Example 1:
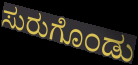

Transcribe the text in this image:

ಸುರುಗೊಂಡು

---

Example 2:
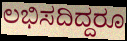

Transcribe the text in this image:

ಲಭಿಸದಿದ್ದರೂ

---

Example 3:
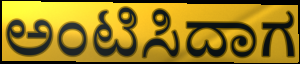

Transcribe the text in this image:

ಅಂಟಿಸಿದಾಗ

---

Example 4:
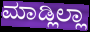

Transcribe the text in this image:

ಮಾಡ್ಲಿಲ್ಲಾ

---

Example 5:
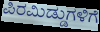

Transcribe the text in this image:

ಪಿರಮಿಡ್ಡುಗಳಿಗೆ